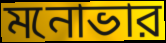
মনোভার